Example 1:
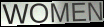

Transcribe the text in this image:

WOMEN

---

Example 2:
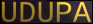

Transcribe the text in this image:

UDUPA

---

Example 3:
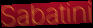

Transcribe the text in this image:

Sabatini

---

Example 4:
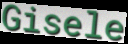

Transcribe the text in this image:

Gisele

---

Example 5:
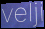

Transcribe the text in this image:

velji